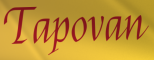
Tapovan